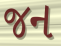
જન